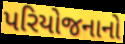
પરિયોજનાનો